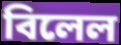
বিলেল